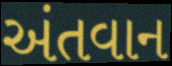
અંતવાન